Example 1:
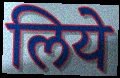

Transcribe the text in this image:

लिये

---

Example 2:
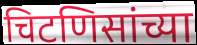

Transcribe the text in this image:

चिटणिसांच्या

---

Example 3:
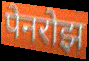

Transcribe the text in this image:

पेनरोझ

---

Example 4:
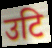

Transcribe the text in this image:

उटि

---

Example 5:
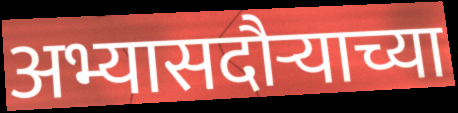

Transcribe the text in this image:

अभ्यासदौऱ्याच्या